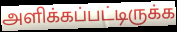
அளிக்கப்பட்டிருக்க